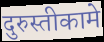
दुरुस्तीकामे